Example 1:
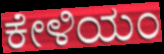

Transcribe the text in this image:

ಕೇಳಿಯಂ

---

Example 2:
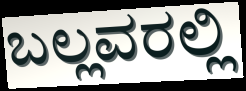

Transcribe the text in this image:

ಬಲ್ಲವರಲ್ಲಿ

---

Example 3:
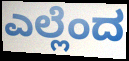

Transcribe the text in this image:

ಎಲ್ಲೆಂದ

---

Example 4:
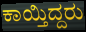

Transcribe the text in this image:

ಕಾಯ್ತಿದ್ದರು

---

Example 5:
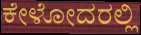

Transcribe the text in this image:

ಕೇಳೋದರಲ್ಲಿ